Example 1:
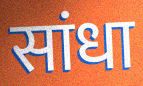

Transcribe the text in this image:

सांधा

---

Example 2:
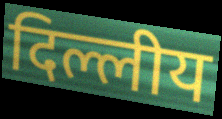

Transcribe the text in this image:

दिल्लीय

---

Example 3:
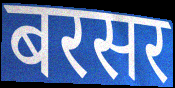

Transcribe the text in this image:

बरसर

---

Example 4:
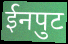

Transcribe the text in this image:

ईनपुट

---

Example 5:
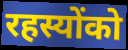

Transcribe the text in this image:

रहस्योंको